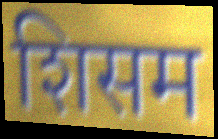
शिसम